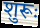
शुरूः